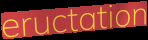
eructation